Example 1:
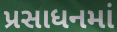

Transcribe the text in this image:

પ્રસાધનમાં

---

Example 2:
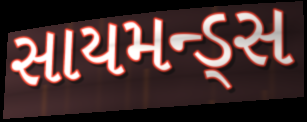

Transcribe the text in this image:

સાયમન્ડ્સ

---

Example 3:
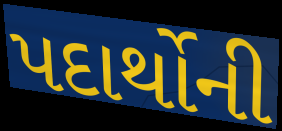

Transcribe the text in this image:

પદાર્થોની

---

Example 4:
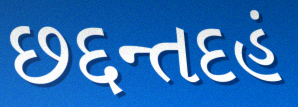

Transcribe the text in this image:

છદ્દન્તદહં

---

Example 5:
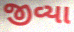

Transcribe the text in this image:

જીવ્યા